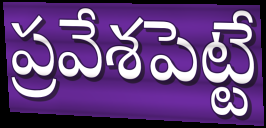
ప్రవేశపెట్టే